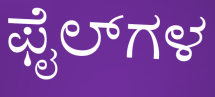
ಫೈಲ್‌ಗಳ